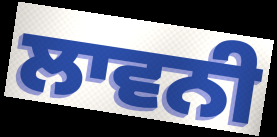
ਲਾਵਨੀ